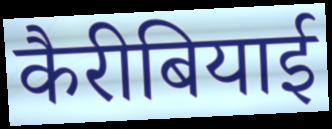
कैरीबियाई